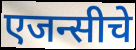
एजन्सीचे